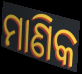
ମାଣିକ